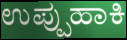
ಉಪ್ಪುಹಾಕಿ